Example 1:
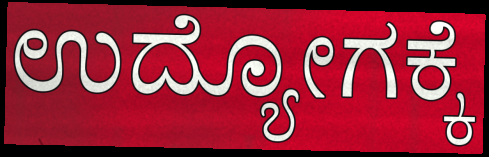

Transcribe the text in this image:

ಉದ್ಯೋಗಕ್ಕೆ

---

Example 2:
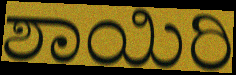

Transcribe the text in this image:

ಶಾಯಿರಿ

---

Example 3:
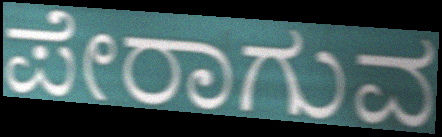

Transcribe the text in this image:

ಪೇರಾಗುವ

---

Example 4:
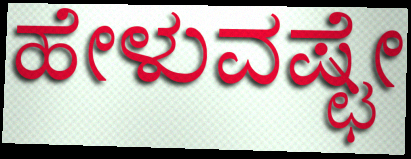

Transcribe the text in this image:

ಹೇಳುವಷ್ಟೇ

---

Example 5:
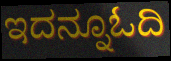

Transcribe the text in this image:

ಇದನ್ನೂಓದಿ